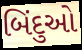
બિંદુઓ